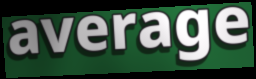
average